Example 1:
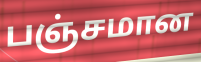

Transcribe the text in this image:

பஞ்சமான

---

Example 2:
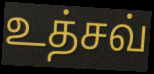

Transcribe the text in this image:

உத்சவ்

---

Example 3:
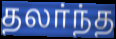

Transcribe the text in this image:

தலர்ந்த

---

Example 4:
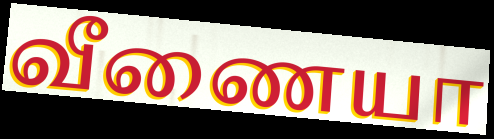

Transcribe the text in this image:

வீணையா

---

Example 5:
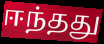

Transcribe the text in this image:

ஈந்தது